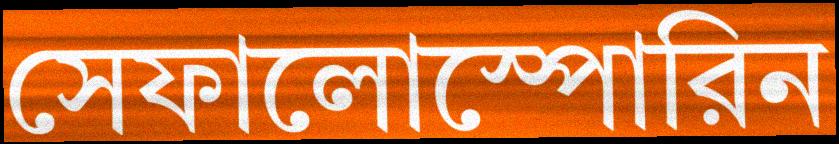
সেফালোস্পোরিন